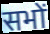
सभों